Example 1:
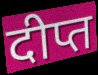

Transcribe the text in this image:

दीप्त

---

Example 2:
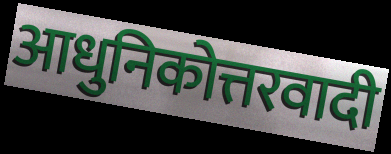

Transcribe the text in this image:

आधुनिकोत्तरवादी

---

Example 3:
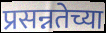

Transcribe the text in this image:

प्रसन्नतेच्या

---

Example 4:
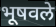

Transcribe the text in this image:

भूषवले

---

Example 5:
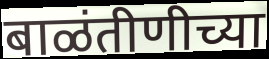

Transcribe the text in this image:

बाळंतीणीच्या